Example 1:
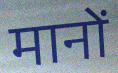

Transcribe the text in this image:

मानों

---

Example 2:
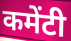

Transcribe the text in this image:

कमेंटी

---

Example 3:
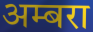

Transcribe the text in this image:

अम्बरा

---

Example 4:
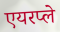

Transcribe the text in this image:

एयरप्ले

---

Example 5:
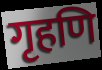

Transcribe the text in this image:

गृहणि